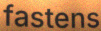
fastens